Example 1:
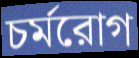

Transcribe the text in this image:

চর্মরোগ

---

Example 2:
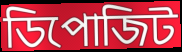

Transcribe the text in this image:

ডিপোজিট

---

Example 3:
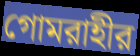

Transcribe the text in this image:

গোমরাহীর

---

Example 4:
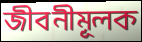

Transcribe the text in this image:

জীবনীমূলক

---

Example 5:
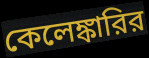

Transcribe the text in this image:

কেলেঙ্কারির